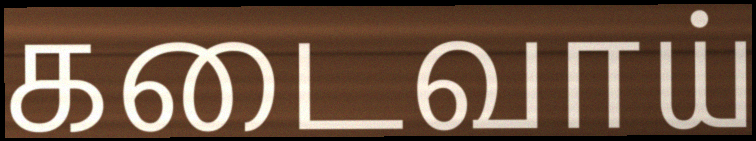
கடைவாய்